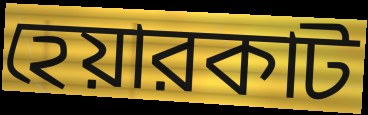
হেয়ারকাট